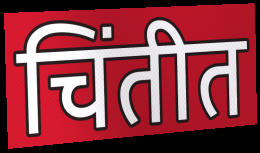
चिंतीत